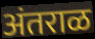
अंतराळ